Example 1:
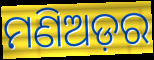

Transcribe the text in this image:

ମଣିଅଡ଼ର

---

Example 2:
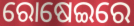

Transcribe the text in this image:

ରୋଷେଇରେ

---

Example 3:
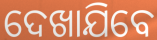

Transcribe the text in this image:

ଦେଖାଯିବେ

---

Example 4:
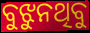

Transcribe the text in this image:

ବୁଝୁନଥିବୁ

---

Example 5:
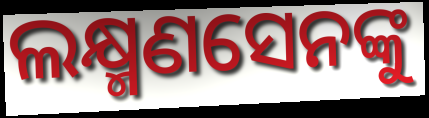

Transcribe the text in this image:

ଲକ୍ଷ୍ମଣସେନଙ୍କୁ